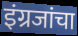
इंग्रजांचा